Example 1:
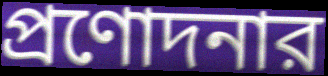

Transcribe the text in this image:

প্রণোদনার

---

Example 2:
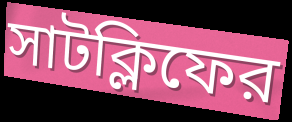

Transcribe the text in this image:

সাটক্লিফের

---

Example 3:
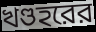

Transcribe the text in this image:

খণ্ডহরের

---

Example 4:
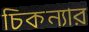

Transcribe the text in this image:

চিকন্যার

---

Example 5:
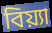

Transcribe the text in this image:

বিয়্যা